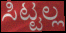
ಸಿಟ್ಟಲ್ಲ